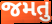
જમતુ